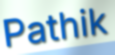
Pathik